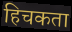
हिचकता